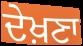
ਦੇਖ਼ਣਾ